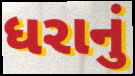
ધરાનું